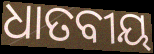
ଧାତବୀୟ